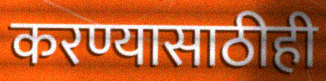
करण्यासाठीही